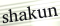
shakun